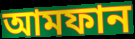
আমফান